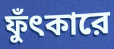
ফুঁৎকারে